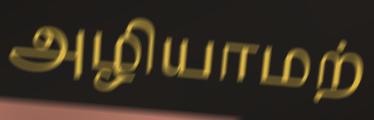
அழியாமற்